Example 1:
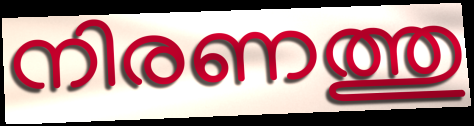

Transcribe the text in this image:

നിരണത്തു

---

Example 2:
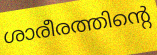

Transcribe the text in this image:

ശാരീരത്തിന്റെ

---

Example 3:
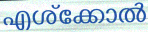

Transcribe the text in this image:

എശ്ക്കോൽ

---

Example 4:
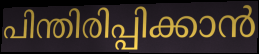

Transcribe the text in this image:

പിന്തിരിപ്പിക്കാൻ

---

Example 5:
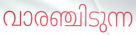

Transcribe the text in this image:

വാരഞ്ചിടുന്ന